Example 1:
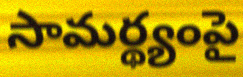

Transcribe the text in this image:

సామర్థ్యంపై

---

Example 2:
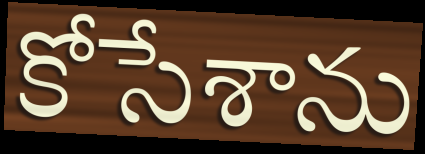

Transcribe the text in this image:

కోసేశాను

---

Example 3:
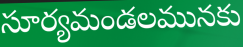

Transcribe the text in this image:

సూర్యమండలమునకు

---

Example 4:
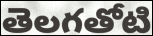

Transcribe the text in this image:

తెలగతోటి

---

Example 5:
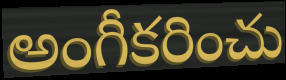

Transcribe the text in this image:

అంగీకరించు